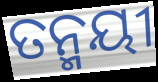
ତନ୍ମୟୀ